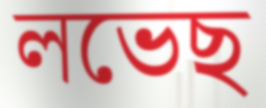
লভেছ